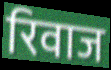
रिवाज